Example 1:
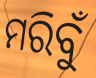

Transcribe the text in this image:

ମରିବୁଁ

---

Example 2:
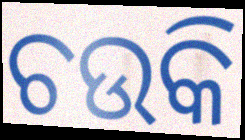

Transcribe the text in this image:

ଚଉକି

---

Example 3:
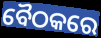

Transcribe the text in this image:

ବୈଠକରେ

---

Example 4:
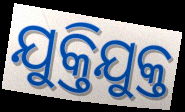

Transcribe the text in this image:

ଯୁକ୍ତିଯୁକ୍ତ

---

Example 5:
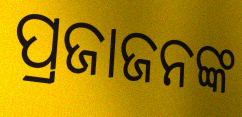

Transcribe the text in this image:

ପ୍ରଜାଜନଙ୍କ